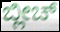
ಬ್ಲೀಚ್